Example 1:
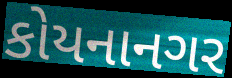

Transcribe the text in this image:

કોયનાનગર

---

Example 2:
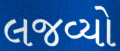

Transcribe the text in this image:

લજવ્યો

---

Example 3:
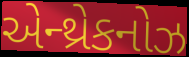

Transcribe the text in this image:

એન્થ્રેકનોઝ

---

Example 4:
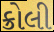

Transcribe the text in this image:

ક્રોલી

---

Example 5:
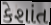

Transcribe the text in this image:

કેશાંત